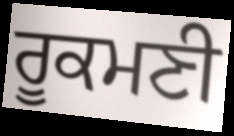
ਰੂਕਮਣੀ